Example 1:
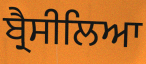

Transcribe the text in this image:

ਬ੍ਰੈਸੀਲਿਆ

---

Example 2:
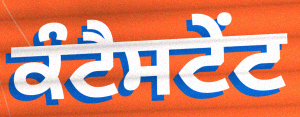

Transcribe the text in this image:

ਕੰਟੈਸਟੇਂਟ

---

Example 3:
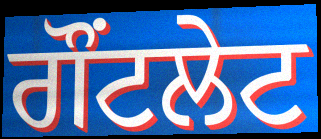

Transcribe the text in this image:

ਗੌਂਟਲੇਟ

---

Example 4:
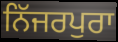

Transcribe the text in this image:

ਨਿੱਜਰਪੁਰਾ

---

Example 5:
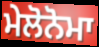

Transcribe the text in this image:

ਮੇਲੋਨੋਮਾ